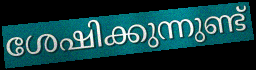
ശേഷിക്കുന്നുണ്ട്